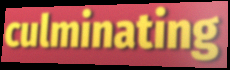
culminating